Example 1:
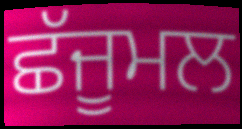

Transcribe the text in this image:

ਛੱਜੂਮਲ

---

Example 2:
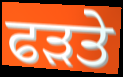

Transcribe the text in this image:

ਫੜਤੇ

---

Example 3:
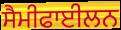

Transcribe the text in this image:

ਸੈਮੀਫਾਈਲਨ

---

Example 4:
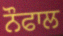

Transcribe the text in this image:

ਨੌਫਾਲ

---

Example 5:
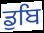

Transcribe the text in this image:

ਡੁਬਿ